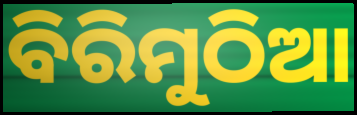
ବିରିମୁଠିଆ